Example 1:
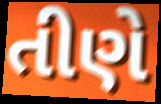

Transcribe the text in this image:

તીણે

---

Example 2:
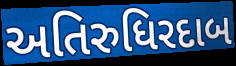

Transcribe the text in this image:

અતિરુધિરદાબ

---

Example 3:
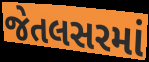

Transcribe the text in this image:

જેતલસરમાં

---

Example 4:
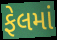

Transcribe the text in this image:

ફેલમાં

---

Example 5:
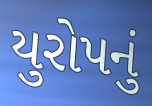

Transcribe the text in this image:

યુરોપનું